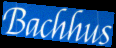
Bachhus